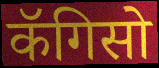
कॅगिसो